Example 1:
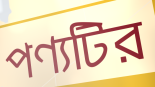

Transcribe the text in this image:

পণ্যটির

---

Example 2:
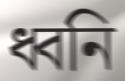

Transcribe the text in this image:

ধ্বনি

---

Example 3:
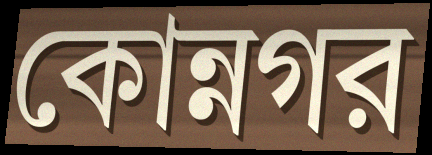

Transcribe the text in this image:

কোন্নগর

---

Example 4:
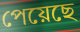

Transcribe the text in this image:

পেয়েছে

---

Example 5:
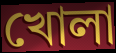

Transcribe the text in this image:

খোলা